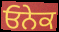
ਓਨੇਕ